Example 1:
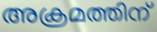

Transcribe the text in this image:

അക്രമത്തിന്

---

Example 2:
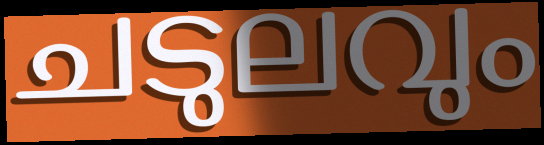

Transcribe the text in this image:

ചടുലവും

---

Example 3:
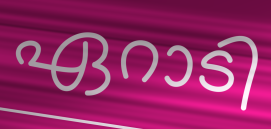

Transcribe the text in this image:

ഏറാടി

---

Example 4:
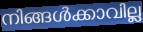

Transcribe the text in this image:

നിങ്ങൾക്കാവില്ല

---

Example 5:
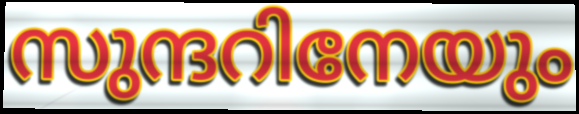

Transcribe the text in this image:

സുന്ദറിനേയും